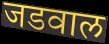
जडवाल